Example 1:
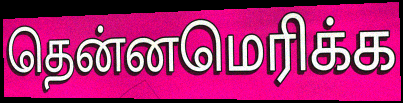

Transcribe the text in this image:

தென்னமெரிக்க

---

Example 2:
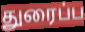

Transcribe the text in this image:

துரைப்ப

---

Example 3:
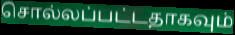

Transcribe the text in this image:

சொல்லப்பட்டதாகவும்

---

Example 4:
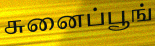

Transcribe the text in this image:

சுனைப்பூங்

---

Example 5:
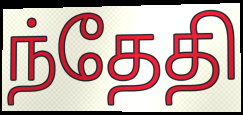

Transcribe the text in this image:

ந்தேதி